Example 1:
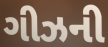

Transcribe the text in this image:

ગીઝની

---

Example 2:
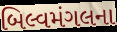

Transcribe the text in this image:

બિલ્વમંગલના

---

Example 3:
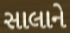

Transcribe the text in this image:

સાલાને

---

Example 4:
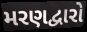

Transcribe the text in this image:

મરણદ્વારો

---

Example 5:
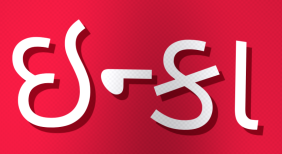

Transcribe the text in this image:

ઇન્કા